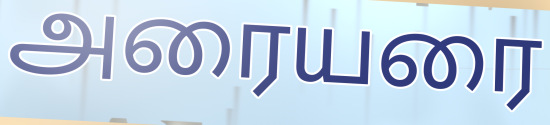
அரையரை